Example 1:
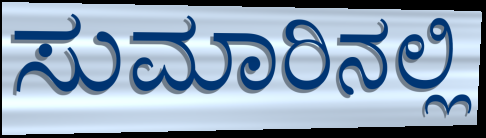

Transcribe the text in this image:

ಸುಮಾರಿನಲ್ಲಿ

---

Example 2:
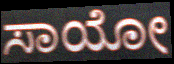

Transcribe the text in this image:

ಸಾಯೋ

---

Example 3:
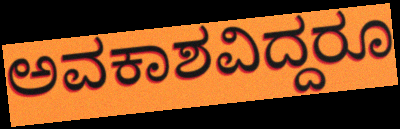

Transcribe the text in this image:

ಅವಕಾಶವಿದ್ದರೂ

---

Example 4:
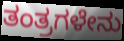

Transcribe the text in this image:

ತಂತ್ರಗಳೇನು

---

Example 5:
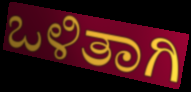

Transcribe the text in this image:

ಒಳಿತಾಗಿ